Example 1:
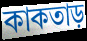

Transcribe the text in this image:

কাকতাড়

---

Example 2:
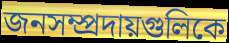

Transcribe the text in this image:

জনসম্প্রদায়গুলিকে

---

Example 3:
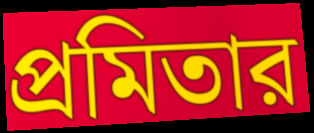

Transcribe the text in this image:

প্রমিতার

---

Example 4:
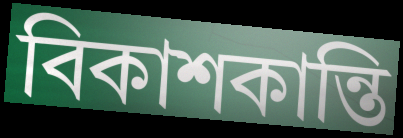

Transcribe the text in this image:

বিকাশকান্তি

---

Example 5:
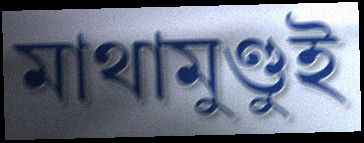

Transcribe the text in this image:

মাথামুণ্ডুই